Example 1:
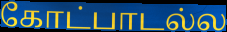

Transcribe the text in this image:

கோட்பாடல்ல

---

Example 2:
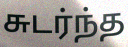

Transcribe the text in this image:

சுடர்ந்த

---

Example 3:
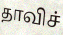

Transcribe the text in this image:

தாவிச்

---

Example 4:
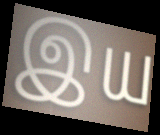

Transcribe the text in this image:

இய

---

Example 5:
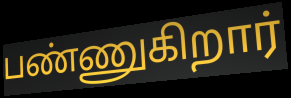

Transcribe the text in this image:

பண்ணுகிறார்